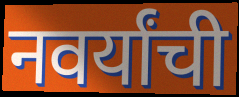
नवर्यांची